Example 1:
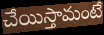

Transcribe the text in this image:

చేయిస్తామంటే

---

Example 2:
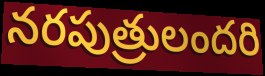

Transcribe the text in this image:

నరపుత్రులందరి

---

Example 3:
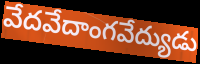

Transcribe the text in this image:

వేదవేదాంగవేద్యుడు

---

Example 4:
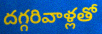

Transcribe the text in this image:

దగ్గరివాళ్లతో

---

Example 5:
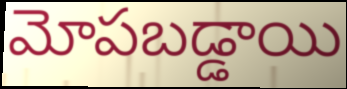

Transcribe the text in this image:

మోపబడ్డాయి